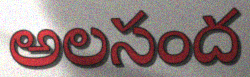
అలసంద